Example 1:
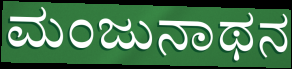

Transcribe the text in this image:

ಮಂಜುನಾಥನ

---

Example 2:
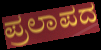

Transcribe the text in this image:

ಪ್ರಲಾಪದ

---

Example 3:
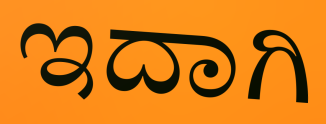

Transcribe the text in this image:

ಇದಾಗಿ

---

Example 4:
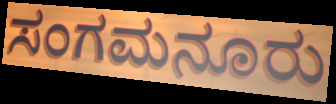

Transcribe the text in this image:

ಸಂಗಮನೂರು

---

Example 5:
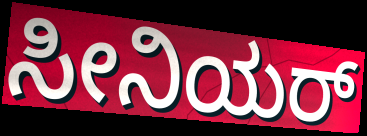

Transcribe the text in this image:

ಸೀನಿಯರ್